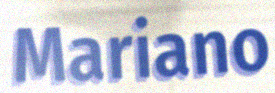
Mariano